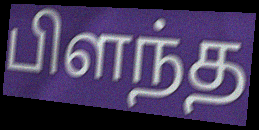
பிளந்த